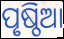
ପୃଷ୍ଠିଆ